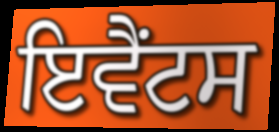
ਇਵੈਂਟਸ